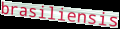
brasiliensis